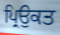
ਪ੍ਰਿਉਕਤ